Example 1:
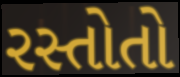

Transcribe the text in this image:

રસ્તોતો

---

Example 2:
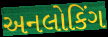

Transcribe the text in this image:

અનલોકિંગ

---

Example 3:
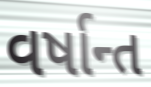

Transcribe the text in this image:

વર્ષાન્ત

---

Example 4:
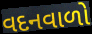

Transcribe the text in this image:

વદનવાળો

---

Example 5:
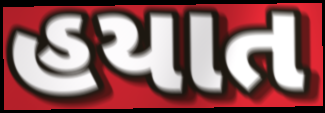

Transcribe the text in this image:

હયાત